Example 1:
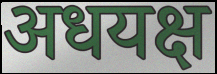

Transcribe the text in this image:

अधयक्ष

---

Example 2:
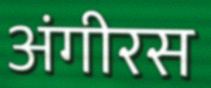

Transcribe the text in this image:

अंगीरस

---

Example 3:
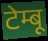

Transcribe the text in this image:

टेम्बू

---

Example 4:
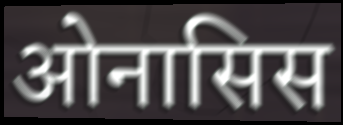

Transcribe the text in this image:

ओनासिस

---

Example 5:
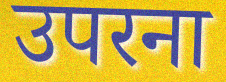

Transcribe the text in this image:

उपरना